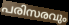
പരിസരവും